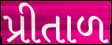
પ્રીતાળ